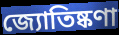
জ্যোতিষ্কণা